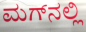
ಮಗ್‌ನಲ್ಲಿ